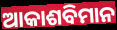
ଆକାଶବିମାନ